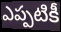
ఎప్పటికీ